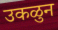
उकळुन